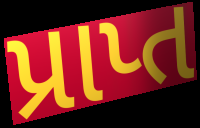
પ્રાપ્ત